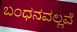
ಬಂಧನವಲ್ಲವೆ